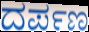
ದರ್ಪಣ